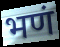
भणं